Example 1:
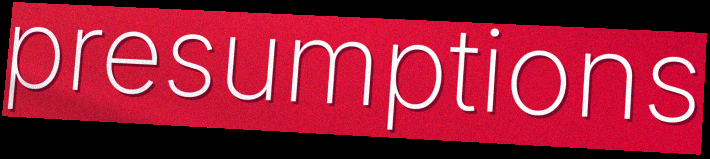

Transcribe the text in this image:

presumptions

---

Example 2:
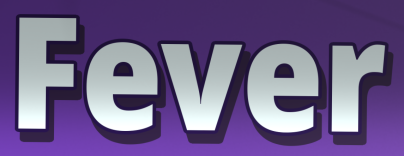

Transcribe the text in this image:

Fever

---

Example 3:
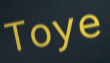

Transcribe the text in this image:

Toye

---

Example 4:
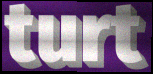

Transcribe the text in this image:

turt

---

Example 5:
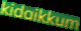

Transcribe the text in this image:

kidaikkum